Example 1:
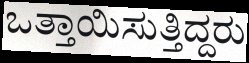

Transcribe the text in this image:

ಒತ್ತಾಯಿಸುತ್ತಿದ್ದರು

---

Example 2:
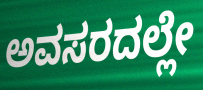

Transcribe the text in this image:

ಅವಸರದಲ್ಲೇ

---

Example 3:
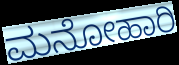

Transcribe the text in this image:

ಮನೋಹಾರಿ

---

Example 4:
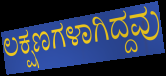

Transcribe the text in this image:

ಲಕ್ಷಣಗಳಾಗಿದ್ದವು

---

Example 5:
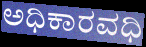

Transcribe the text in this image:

ಅಧಿಕಾರವಧಿ